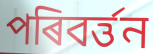
পৰিবৰ্ত্তন